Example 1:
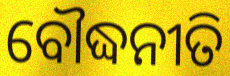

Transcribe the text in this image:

ବୌଦ୍ଧନୀତି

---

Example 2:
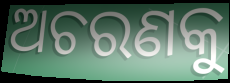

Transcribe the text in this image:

ଅଚରଣକୁ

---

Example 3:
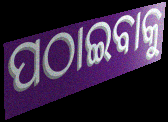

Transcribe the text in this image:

ପଠାଇବାକୁ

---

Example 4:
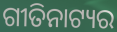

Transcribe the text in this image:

ଗୀତିନାଟ୍ୟର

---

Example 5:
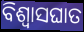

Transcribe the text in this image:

ବିଶ୍ବାସଘାତ